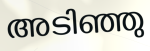
അടിഞ്ഞു